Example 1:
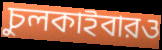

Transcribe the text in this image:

চুলকাইবারও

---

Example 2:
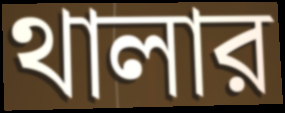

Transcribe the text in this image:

থালার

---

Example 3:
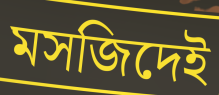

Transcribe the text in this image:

মসজিদেই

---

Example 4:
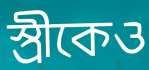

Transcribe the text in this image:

স্ত্রীকেও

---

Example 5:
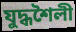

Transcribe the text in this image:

যুদ্ধশৈলী